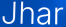
Jhar